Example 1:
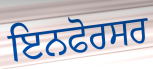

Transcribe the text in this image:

ਇਨਫੋਰਸਰ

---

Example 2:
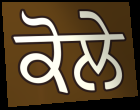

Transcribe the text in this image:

ਕੋਲੇ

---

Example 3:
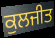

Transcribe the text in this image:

ਕੁਲਜੀਤ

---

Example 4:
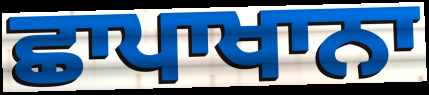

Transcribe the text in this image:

ਛਾਪਾਖਾਨਾ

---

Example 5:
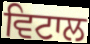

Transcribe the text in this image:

ਵਿਟਾਲ